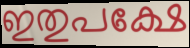
ഇതുപക്ഷേ